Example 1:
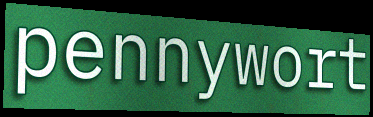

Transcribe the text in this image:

pennywort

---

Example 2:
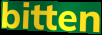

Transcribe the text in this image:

bitten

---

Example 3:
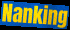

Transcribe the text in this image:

Nanking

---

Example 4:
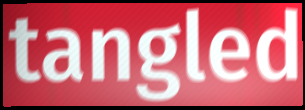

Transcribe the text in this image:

tangled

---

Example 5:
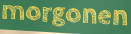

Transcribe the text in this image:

morgonen